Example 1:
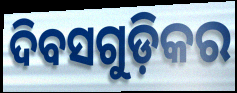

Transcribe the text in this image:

ଦିବସଗୁଡ଼ିକର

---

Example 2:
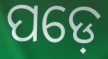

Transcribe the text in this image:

ପଡ଼େ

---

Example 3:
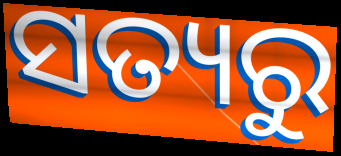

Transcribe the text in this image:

ସତ୍ୟରୁ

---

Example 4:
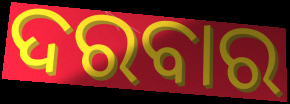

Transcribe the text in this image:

ଦରବାର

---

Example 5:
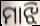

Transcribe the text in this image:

ମାଝି